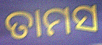
ତାମସ